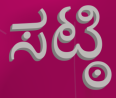
ಸಟ್ಠಿ